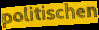
politischen